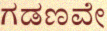
ಗಡಣವೇ